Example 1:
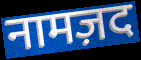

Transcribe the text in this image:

नामज़द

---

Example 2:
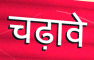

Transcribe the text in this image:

चढ़ावे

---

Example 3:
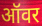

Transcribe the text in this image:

ऑवर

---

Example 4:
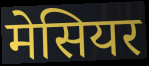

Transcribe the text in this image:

मेसियर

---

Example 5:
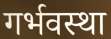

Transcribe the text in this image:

गर्भवस्था